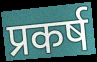
प्रकर्ष